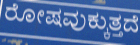
ರೋಷವುಕ್ಕುತ್ತದೆ